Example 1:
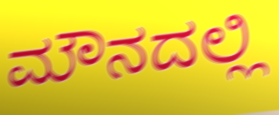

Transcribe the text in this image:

ಮೌನದಲ್ಲಿ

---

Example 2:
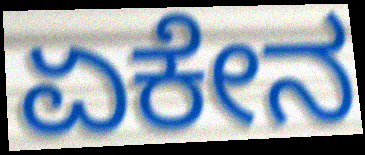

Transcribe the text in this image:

ಏಕೇನ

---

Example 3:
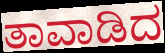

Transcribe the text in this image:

ತಾವಾಡಿದ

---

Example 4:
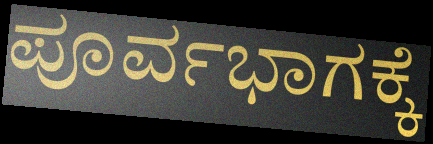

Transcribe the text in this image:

ಪೂರ್ವಭಾಗಕ್ಕೆ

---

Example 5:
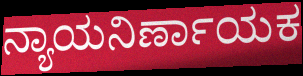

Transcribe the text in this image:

ನ್ಯಾಯನಿರ್ಣಾಯಕ